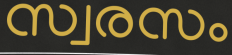
സ്വരസം